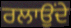
ਰਲਾਉਂਦੇ